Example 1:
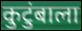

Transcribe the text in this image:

कुटुंबाला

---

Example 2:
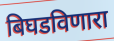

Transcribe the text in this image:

बिघडविणारा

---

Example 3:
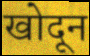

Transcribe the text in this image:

खोदून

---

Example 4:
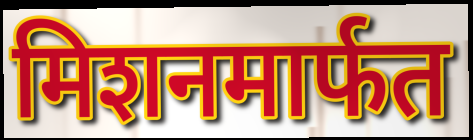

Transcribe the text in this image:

मिशनमार्फत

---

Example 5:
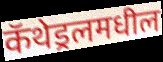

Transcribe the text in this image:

कॅथेड्रलमधील